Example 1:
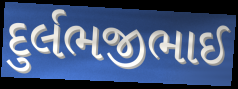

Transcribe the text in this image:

દુર્લભજીભાઈ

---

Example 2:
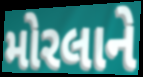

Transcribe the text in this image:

મોરલાને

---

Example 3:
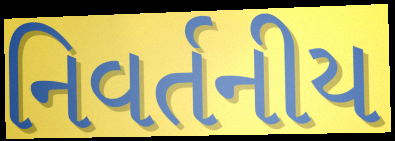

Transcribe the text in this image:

નિવર્તનીય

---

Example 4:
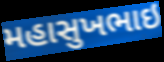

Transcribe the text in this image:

મહાસુખભાઇ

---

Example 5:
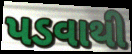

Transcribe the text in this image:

પડવાથી